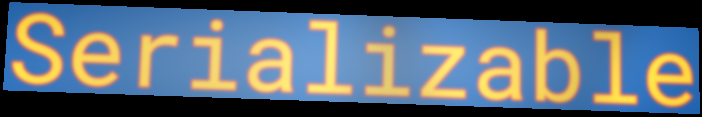
Serializable